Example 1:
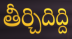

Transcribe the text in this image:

తీర్చిదిద్ది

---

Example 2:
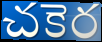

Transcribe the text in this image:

చకెర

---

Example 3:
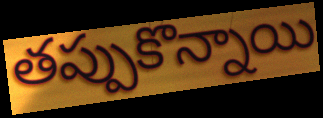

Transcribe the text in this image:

తప్పుకొన్నాయి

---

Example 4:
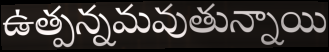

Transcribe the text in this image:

ఉత్పన్నమవుతున్నాయి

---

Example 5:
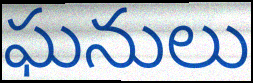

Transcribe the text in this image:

ఘనులు